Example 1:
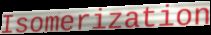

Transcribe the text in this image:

Isomerization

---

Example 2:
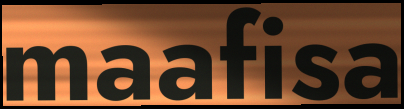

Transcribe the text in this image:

maafisa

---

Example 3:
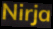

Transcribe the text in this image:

Nirja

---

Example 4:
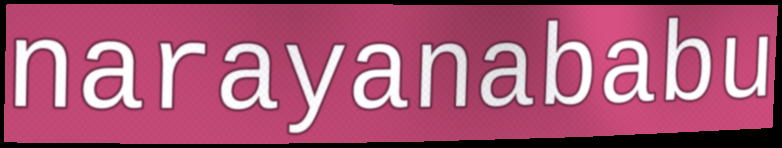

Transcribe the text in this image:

narayanababu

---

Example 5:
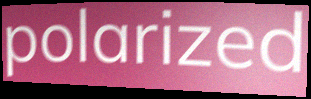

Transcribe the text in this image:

polarized